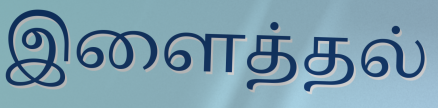
இளைத்தல்